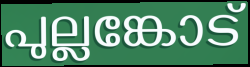
പുല്ലങ്കോട്